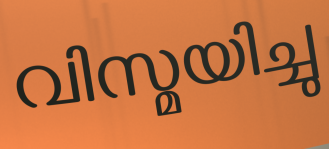
വിസ്മയിച്ചു